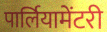
पार्लियामेंटरी